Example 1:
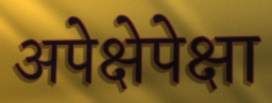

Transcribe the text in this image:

अपेक्षेपेक्षा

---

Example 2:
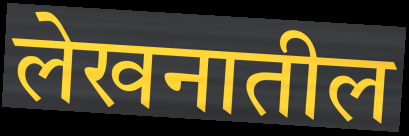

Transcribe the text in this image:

लेखनातील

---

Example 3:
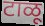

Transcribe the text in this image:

टाळू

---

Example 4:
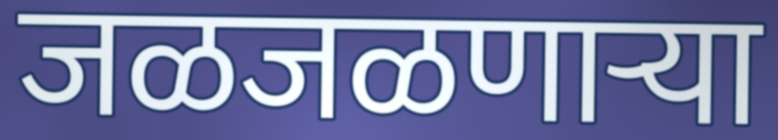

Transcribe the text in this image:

जळजळणाऱ्या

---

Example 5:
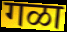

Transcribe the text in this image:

गळा